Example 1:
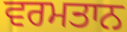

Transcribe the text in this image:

ਵਰਮਤਾਨ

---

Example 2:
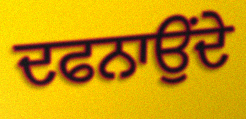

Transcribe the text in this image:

ਦਫਨਾਉਂਦੇ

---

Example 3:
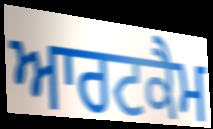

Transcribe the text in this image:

ਆਰਟਕੈਮ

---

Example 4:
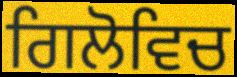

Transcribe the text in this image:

ਗਿਲੋਵਿਚ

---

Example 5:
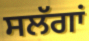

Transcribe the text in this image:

ਸਲੱਗਾਂ